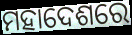
ମହାଦେଶରେ